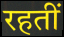
रहतीं